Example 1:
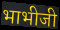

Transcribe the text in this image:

भाभीजी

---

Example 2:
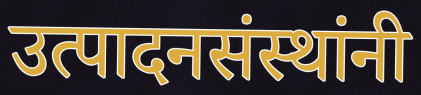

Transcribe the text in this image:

उत्पादनसंस्थांनी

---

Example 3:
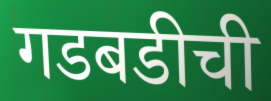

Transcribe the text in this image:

गडबडीची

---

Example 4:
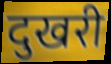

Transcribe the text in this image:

दुखरी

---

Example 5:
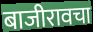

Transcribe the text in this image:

बाजीरावचा